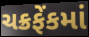
ચક્રફેંકમાં